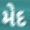
મેદ